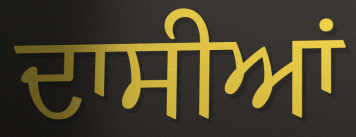
ਦਾਸੀਆਂ